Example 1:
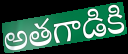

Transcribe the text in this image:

అతగాడికి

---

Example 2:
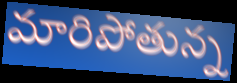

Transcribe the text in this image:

మారిపోతున్న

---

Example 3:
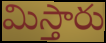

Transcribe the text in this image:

మిస్తారు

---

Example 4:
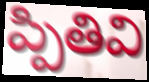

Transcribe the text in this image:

ప్పితివి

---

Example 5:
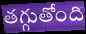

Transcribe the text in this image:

తగ్గుతోంది